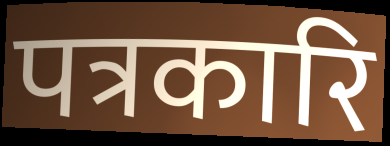
पत्रकारि